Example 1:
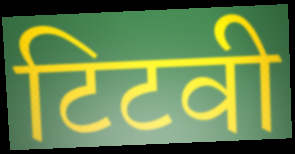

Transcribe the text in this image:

टिटवी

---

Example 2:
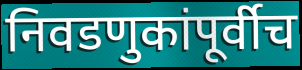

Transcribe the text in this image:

निवडणुकांपूर्वीच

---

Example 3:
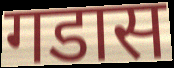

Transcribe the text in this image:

गडास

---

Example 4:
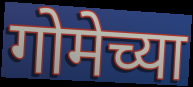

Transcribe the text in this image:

गोमेच्या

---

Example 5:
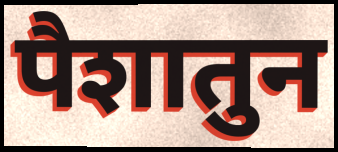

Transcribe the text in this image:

पैशातुन